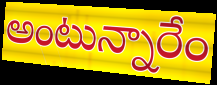
అంటున్నారేం